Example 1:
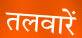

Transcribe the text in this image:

तलवारें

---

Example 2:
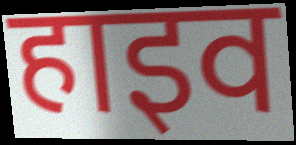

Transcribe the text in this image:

हाइव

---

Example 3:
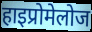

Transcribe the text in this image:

हाइप्रोमेलोज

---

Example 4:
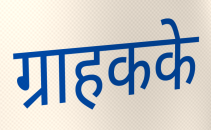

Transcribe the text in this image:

ग्राहकके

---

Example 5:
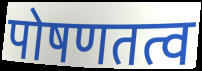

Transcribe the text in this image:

पोषणतत्व